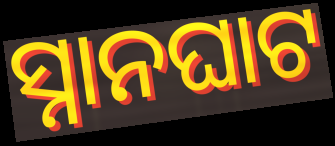
ସ୍ନାନଘାଟ